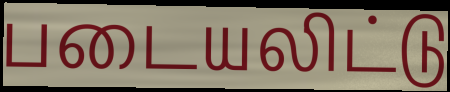
படையலிட்டு